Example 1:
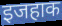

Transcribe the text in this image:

इजहाक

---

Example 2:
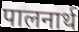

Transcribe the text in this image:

पालनार्थ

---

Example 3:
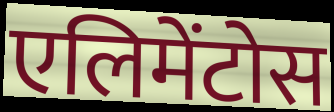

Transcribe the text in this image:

एलिमेंटोस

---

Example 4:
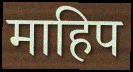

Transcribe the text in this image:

माहिप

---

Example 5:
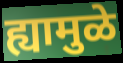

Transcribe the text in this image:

ह्यामुळे